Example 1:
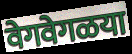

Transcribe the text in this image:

वेगवेगळया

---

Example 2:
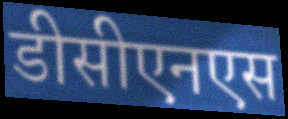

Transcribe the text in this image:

डीसीएनएस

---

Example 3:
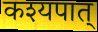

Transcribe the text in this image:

कश्यपात्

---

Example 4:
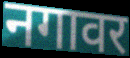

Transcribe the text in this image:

नगावर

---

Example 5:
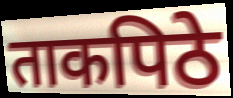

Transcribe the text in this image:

ताकपिठे